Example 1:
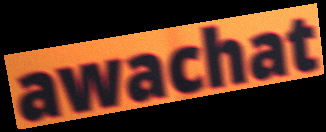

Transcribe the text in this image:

awachat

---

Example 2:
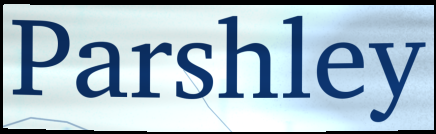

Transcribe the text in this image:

Parshley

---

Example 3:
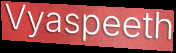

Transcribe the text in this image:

Vyaspeeth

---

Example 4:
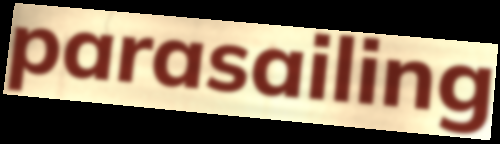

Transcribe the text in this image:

parasailing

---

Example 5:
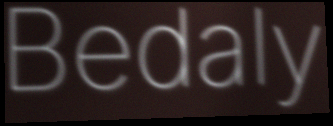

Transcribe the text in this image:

Bedaly